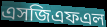
এসজিএফএল